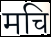
मचि